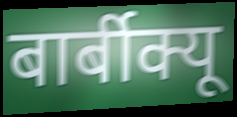
बार्बीक्यू